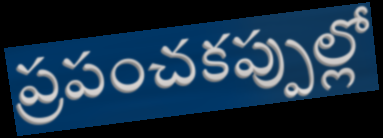
ప్రపంచకప్పుల్లో